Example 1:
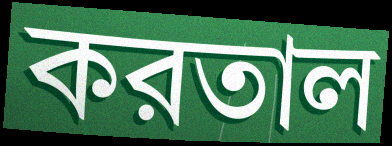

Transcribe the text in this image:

করতাল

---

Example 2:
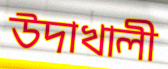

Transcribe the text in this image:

উদাখালী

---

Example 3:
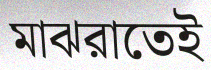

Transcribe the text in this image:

মাঝরাতেই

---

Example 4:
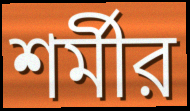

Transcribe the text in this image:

শর্মীর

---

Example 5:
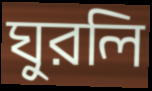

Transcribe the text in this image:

ঘুরলি